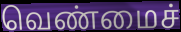
வெண்மைச்